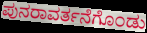
ಪುನರಾವರ್ತನೆಗೊಂಡು